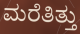
ಮರೆತಿತ್ತು